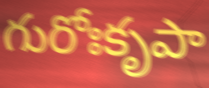
గురోఃకృపా